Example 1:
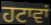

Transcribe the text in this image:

ਹਟਾਵਾਂ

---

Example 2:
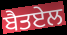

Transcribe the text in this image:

ਬੈਤਏਲ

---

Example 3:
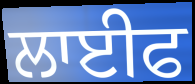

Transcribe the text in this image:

ਲਾਈਫ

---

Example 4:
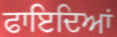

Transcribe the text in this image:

ਫਾਇਦਿਆਂ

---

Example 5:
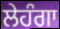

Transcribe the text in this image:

ਲੇਹੰਗਾ